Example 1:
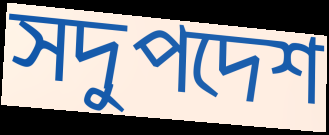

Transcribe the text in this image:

সদুপদেশ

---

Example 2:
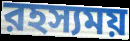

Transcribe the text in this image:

রহস্যময়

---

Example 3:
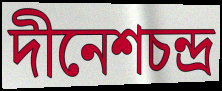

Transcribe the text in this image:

দীনেশচন্দ্র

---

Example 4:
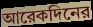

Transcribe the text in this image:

আরেকদিনের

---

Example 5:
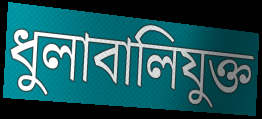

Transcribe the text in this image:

ধুলাবালিযুক্ত